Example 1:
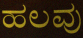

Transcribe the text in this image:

ಹಲವು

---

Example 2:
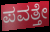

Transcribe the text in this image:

ಪವತ್ತೇ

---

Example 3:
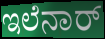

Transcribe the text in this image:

ಇಲೆನಾರ್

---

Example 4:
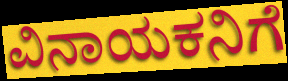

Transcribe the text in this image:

ವಿನಾಯಕನಿಗೆ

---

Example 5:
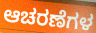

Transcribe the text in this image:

ಆಚರಣೆಗಳ